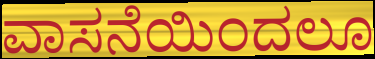
ವಾಸನೆಯಿಂದಲೂ